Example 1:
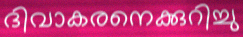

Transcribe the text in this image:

ദിവാകരനെക്കുറിച്ചു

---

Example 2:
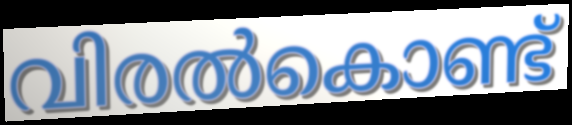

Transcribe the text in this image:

വിരൽകൊണ്ട്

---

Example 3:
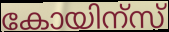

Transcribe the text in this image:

കോയിന്സ്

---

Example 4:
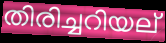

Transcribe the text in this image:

തിരിച്ചറിയല്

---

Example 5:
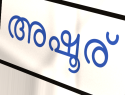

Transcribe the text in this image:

അഷൂര്